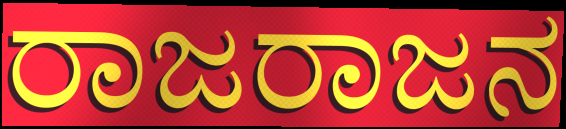
ರಾಜರಾಜನ